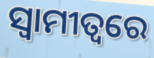
ସ୍ୱାମୀତ୍ୱରେ